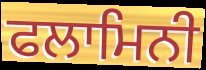
ਫਲਾਮਿਨੀ